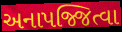
અનાપજ્જિત્વા